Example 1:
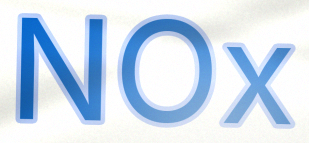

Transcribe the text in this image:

NOx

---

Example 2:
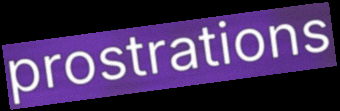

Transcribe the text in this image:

prostrations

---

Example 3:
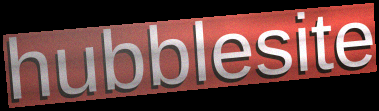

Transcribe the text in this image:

hubblesite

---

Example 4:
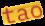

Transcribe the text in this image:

tao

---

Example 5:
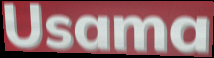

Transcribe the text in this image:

Usama